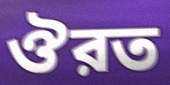
ঔরত